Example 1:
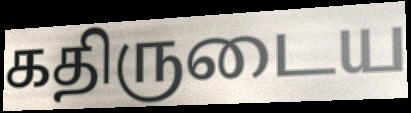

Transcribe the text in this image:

கதிருடைய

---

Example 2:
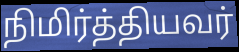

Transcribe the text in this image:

நிமிர்த்தியவர்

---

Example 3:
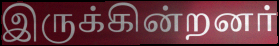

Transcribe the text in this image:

இருக்கின்றனர்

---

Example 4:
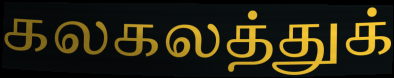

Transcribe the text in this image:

கலகலத்துக்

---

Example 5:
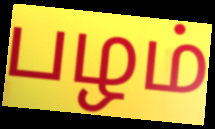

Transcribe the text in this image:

பழம்